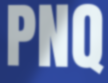
PNQ